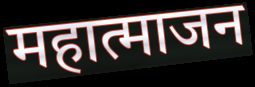
महात्माजन